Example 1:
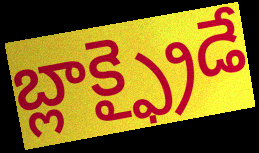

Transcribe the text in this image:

బ్లాక్ఫ్రైడే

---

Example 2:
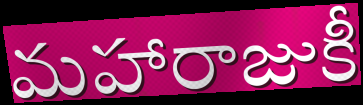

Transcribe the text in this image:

మహారాజుకీ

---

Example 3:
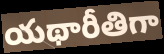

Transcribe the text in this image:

యథారీతిగా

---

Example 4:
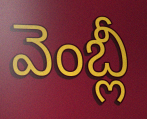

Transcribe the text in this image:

వెంబ్లీ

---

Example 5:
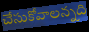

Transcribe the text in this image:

చేసుకోవాలన్నది